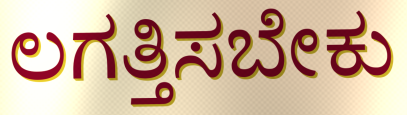
ಲಗತ್ತಿಸಬೇಕು